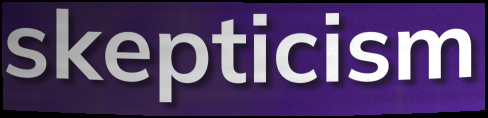
skepticism